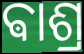
ଵାଶ୍ର